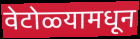
वेटोळ्यामधून